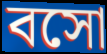
বসো